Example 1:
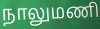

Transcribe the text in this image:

நாலுமணி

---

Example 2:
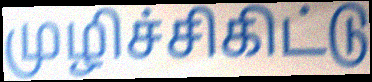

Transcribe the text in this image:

முழிச்சிகிட்டு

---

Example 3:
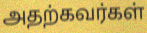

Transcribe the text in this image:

அதற்கவர்கள்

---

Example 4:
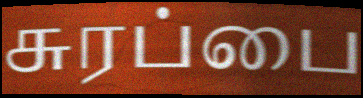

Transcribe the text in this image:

சுரப்பை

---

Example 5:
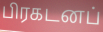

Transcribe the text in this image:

பிரகடனப்